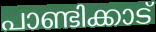
പാണ്ടിക്കാട്